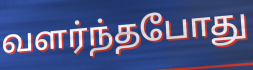
வளர்ந்தபோது